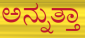
ಅನ್ನುತ್ತಾ